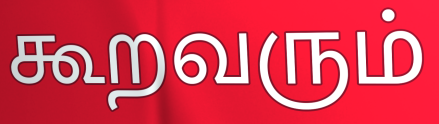
கூறவரும்